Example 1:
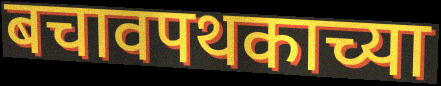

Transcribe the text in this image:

बचावपथकाच्या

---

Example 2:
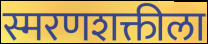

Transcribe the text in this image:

स्मरणशक्तीला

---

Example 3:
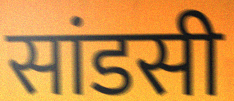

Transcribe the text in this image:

सांडसी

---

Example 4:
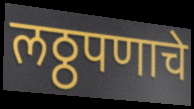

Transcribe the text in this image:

लठ्ठपणाचे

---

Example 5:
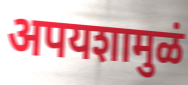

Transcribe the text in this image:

अपयशामुळं